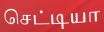
செட்டியா